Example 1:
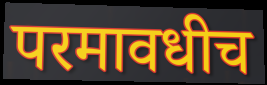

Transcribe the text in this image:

परमावधीच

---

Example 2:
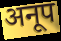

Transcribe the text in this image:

अनूप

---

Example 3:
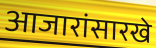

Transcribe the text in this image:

आजारांसारखे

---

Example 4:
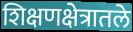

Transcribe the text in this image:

शिक्षणक्षेत्रातले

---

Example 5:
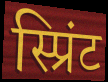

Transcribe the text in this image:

स्प्रिंट